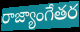
రాజ్యాంగేతర